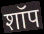
शॉप